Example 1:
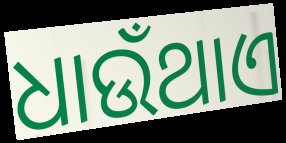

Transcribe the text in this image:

ଧାଉଁଥାଏ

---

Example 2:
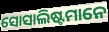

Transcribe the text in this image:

ସୋସାଲିଷ୍ଟମାନେ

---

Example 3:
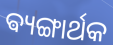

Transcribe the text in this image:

ଵ୍ୟଙ୍ଗାର୍ଥକ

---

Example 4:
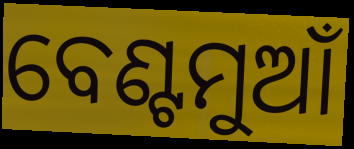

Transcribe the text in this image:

ବେଣ୍ଟମୁଆଁ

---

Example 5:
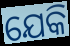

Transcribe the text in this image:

ଯେକି